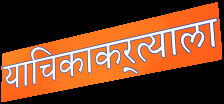
याचिकाकर्त्याला